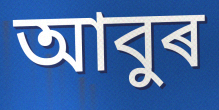
আবুৰ